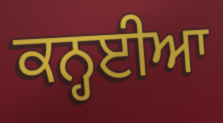
ਕਨ੍ਹਈਆ